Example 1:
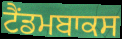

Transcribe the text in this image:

ਟੈਂਡਮਬਾਕਸ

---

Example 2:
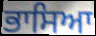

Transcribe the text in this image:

ਭਾਸਿਆ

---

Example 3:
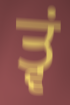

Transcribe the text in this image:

ਤ੍ਵਂ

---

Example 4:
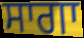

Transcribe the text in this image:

ਸਾਗਾ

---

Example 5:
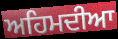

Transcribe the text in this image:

ਅਹਿਮਦੀਆ